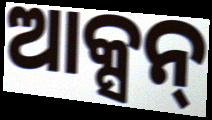
ଆକ୍ସନ୍